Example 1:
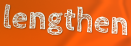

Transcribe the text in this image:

lengthen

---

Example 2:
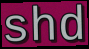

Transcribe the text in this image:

shd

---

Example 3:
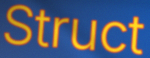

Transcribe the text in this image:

Struct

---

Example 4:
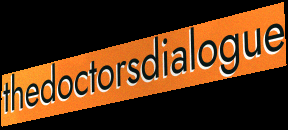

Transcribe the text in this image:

thedoctorsdialogue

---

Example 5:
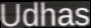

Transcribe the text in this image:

Udhas